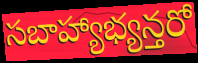
సబాహ్యాభ్యన్తరో